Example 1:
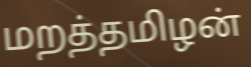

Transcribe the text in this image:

மறத்தமிழன்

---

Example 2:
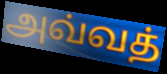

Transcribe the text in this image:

அவ்வத்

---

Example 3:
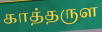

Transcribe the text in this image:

காத்தருள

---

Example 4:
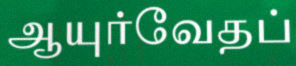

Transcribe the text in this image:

ஆயுர்வேதப்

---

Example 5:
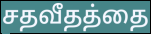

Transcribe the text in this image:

சதவீதத்தை